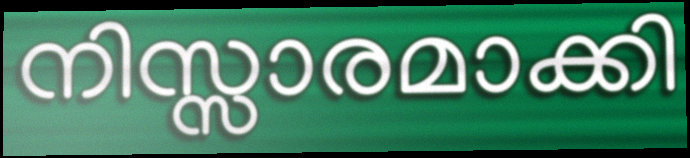
നിസ്സാരമാക്കി